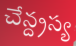
చేన్ద్రస్య